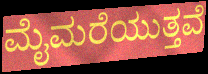
ಮೈಮರೆಯುತ್ತವೆ